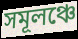
সমূলঞ্চে